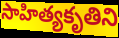
సాహిత్యకృతిని